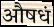
औषधं